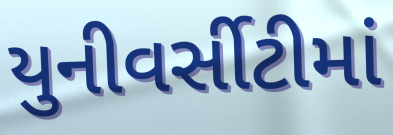
યુનીવર્સીટીમાં